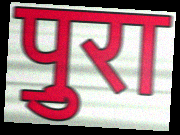
पु॒रा